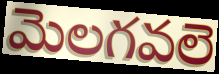
మెలగవలె